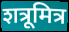
शत्रूमित्र